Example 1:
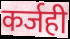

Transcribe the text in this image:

कर्जही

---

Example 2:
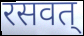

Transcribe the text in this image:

रसवत्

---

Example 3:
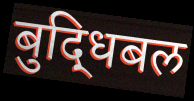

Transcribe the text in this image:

बुद्धिबल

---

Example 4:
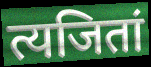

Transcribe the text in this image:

त्यजितां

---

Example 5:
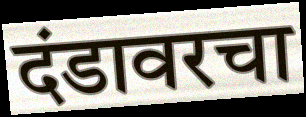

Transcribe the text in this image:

दंडावरचा